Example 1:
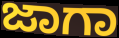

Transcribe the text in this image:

ಜಾಗಾ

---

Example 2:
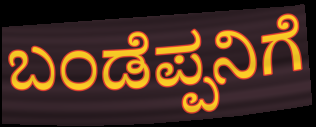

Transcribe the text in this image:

ಬಂಡೆಪ್ಪನಿಗೆ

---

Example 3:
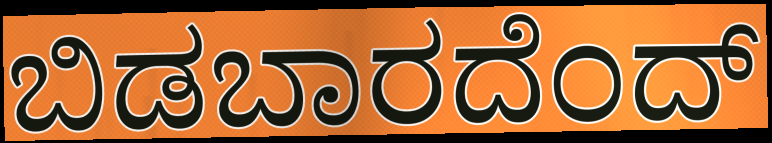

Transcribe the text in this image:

ಬಿಡಬಾರದೆಂದ್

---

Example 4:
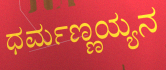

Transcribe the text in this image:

ಧರ್ಮಣ್ಣಯ್ಯನ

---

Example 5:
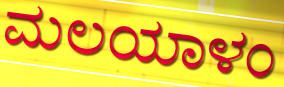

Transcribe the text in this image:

ಮಲಯಾಳಂ